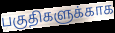
பகுதிகளுக்காக